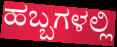
ಹಬ್ಬಗಳಲ್ಲಿ